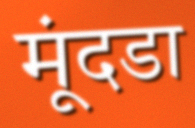
मूंदडा